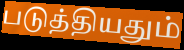
படுத்தியதும்